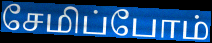
சேமிப்போம்